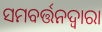
ସମବର୍ତ୍ତନଦ୍ୱାରା